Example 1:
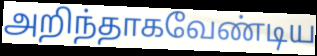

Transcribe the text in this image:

அறிந்தாகவேண்டிய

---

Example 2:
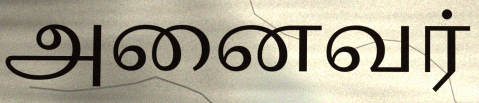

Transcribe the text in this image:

அனைவர்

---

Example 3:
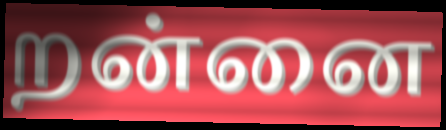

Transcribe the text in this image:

றன்னை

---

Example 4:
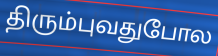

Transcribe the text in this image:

திரும்புவதுபோல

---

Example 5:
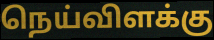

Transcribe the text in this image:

நெய்விளக்கு